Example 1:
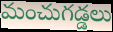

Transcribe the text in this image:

మంచుగడ్డలు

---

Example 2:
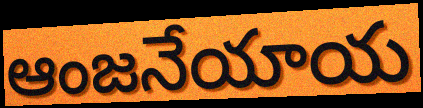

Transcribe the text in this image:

ఆంజనేయాయ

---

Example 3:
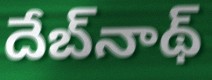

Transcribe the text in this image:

దేబ్‌నాథ్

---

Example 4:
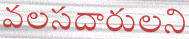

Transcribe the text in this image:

వలసదారులని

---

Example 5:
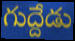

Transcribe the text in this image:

గుద్దేడు